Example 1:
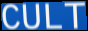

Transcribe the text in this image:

CULT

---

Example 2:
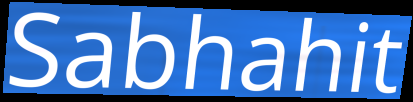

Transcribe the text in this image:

Sabhahit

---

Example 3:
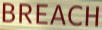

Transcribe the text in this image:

BREACH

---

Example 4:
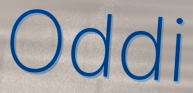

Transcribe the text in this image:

Oddi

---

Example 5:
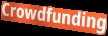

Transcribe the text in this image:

Crowdfunding